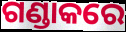
ଗଣ୍ଡାକରେ